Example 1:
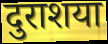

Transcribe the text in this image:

दुराशया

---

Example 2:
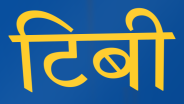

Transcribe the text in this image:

टिबी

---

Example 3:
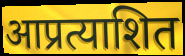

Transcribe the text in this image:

आप्रत्याशित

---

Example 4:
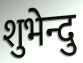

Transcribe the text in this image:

शुभेन्दु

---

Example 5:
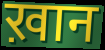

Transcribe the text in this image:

ख़ान